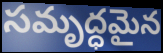
సమృద్ధమైన